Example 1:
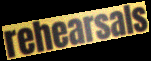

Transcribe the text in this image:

rehearsals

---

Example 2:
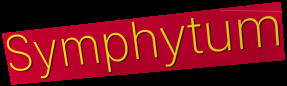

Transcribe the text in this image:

Symphytum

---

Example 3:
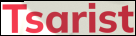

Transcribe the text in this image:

Tsarist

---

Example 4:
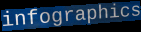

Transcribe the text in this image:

infographics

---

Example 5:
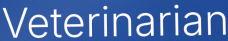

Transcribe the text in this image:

Veterinarian